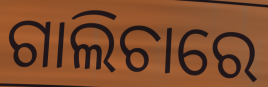
ଗାଲିଚାରେ